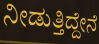
ನೀಡುತ್ತಿದ್ದೇನೆ